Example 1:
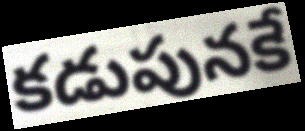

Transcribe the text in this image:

కడుపునకే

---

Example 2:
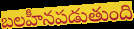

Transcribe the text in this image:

బలహీనపడుతుంది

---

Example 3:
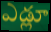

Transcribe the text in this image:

ఎడ్లూ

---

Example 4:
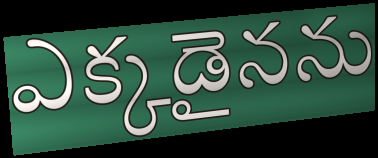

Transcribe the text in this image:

ఎక్కడైనను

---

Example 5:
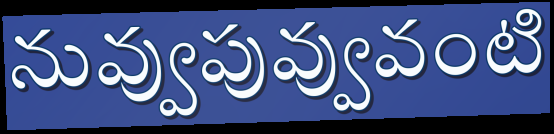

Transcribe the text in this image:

నువ్వుపువ్వువంటి